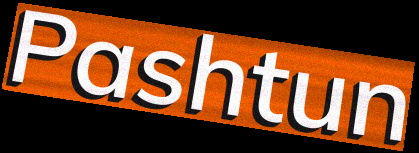
Pashtun